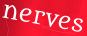
nerves